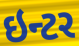
ઇન્ટર